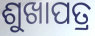
ଶୁଖାପତ୍ର